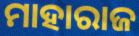
ମାହାରାଜ